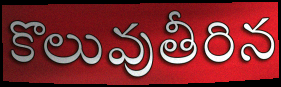
కొలువుతీరిన